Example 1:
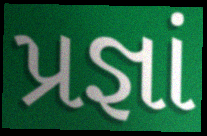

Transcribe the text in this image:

પ્રજ્ઞાં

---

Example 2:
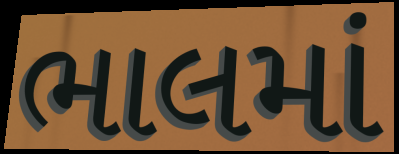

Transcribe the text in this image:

ભાલમાં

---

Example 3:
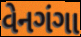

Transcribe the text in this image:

વેનગંગા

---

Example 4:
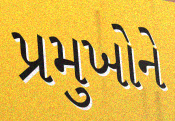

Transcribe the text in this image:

પ્રમુખોને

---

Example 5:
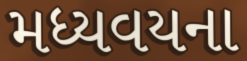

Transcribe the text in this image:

મધ્યવયના